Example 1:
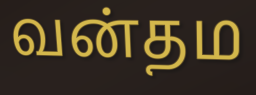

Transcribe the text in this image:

வன்தம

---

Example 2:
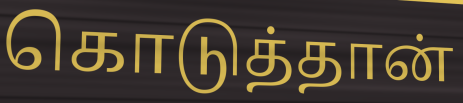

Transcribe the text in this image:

கொடுத்தான்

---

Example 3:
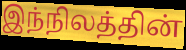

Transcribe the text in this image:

இந்நிலத்தின்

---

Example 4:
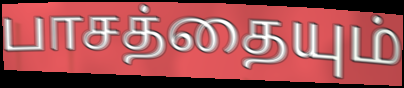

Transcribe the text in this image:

பாசத்தையும்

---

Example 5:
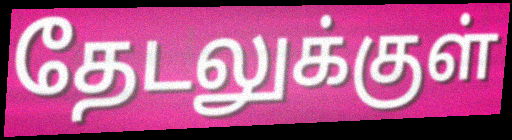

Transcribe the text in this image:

தேடலுக்குள்